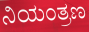
ನಿಯಂತ್ರಣ